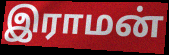
இராமன்